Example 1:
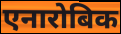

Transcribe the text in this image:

एनारोबिक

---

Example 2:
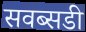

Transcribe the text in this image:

सवब्सडी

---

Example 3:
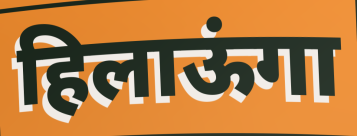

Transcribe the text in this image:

हिलाऊंगा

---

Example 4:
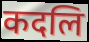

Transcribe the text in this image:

कदलि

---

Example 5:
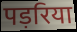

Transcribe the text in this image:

पड़रिया